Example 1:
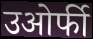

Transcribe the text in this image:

उओर्फी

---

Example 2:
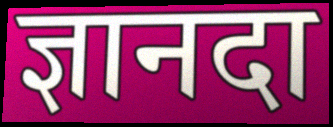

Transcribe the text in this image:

ज्ञानदा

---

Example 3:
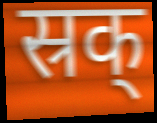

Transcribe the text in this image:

स्रक्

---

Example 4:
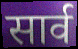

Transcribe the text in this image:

सार्व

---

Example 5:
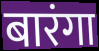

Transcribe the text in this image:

बारंगा